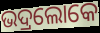
ଭଦ୍ରଲୋକେ